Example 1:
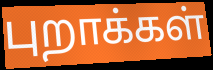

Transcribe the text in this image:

புறாக்கள்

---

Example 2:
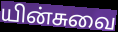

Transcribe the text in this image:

யின்சுவை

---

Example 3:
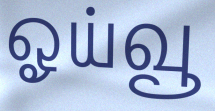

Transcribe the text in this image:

ஓய்வூ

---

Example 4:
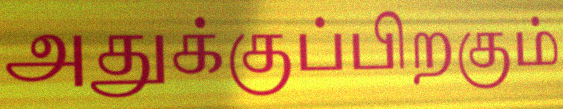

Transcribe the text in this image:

அதுக்குப்பிறகும்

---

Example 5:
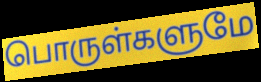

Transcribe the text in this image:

பொருள்களுமே